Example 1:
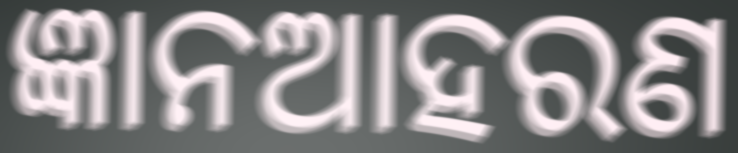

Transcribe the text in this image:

ଜ୍ଞାନଆହରଣ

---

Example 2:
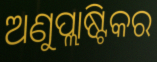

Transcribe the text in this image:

ଅଣୁପ୍ଲାଷ୍ଟିକର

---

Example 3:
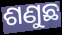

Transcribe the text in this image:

ଶଣୁଛ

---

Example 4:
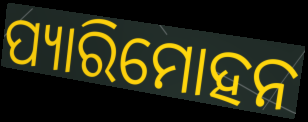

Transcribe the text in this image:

ପ୍ୟାରିମୋହନ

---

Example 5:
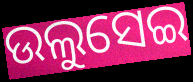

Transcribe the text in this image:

ଉଲୁସେଇ